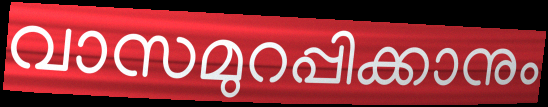
വാസമുറപ്പിക്കാനും